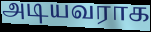
அடியவராக